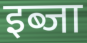
इब्जा